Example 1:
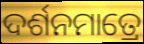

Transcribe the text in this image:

ଦର୍ଶନମାତ୍ରେ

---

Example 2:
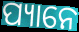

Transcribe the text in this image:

ପ୍ୟାନେ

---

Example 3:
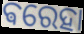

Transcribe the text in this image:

ଵରେହା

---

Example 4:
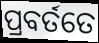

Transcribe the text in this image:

ପ୍ରବର୍ତତେ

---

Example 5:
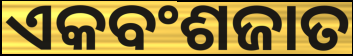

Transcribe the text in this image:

ଏକବଂଶଜାତ